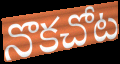
నొకచోట